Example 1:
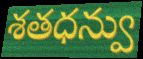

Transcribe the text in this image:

శతధన్వు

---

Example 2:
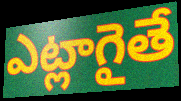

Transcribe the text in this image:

ఎట్లాగైతే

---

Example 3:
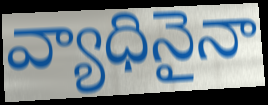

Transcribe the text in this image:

వ్యాధినైనా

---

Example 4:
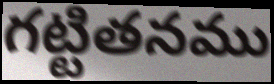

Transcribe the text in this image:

గట్టితనము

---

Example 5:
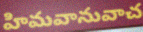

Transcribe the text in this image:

హిమవానువాచ